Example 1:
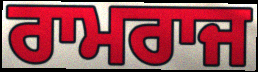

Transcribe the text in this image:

ਰਾਮਰਾਜ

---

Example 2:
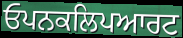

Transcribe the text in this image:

ਓਪਨਕਲਿਪਆਰਟ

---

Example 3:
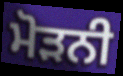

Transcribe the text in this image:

ਮੋੜਨੀ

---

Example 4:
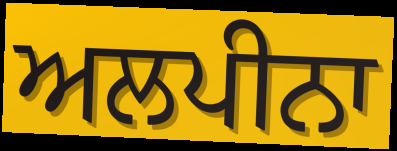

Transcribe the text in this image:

ਅਲਪੀਨਾ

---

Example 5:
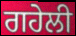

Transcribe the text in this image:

ਗਹੇਲੀ